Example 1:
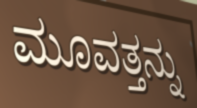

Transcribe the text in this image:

ಮೂವತ್ತನ್ನು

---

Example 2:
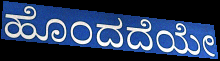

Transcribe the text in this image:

ಹೊಂದದೆಯೇ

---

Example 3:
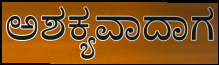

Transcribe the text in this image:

ಅಶಕ್ಯವಾದಾಗ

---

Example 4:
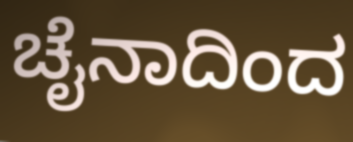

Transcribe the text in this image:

ಚೈನಾದಿಂದ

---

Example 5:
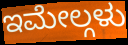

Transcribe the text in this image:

ಇಮೇಲ್ಗಳು